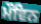
ਮੌਵਿਨ